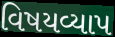
વિષયવ્યાપ